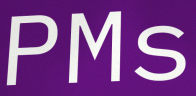
PMs